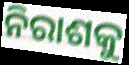
ନିରାଶକୁ